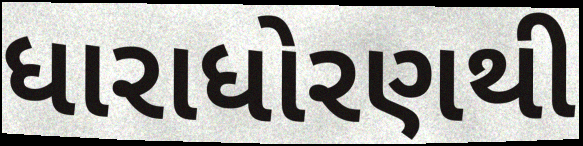
ધારાધોરણથી